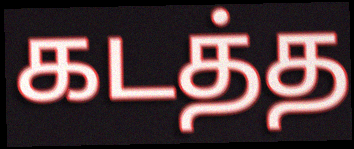
கடத்த